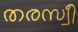
തരസ്വീ